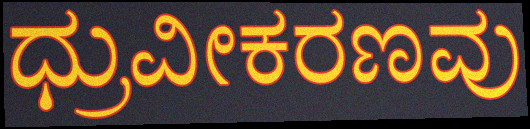
ಧ್ರುವೀಕರಣವು